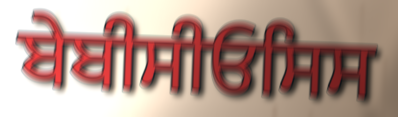
ਬੇਬੀਸੀਓਸਿਸ